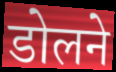
डोलने